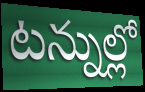
టన్నుల్లో